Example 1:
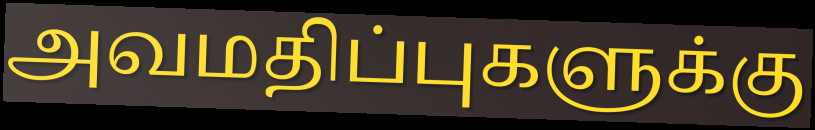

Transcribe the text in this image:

அவமதிப்புகளுக்கு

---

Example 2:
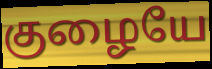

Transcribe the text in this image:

குழையே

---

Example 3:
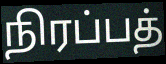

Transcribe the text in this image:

நிரப்பத்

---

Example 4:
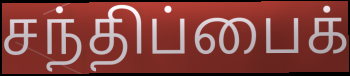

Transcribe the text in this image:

சந்திப்பைக்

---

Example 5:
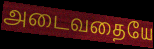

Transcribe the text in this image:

அடைவதையே